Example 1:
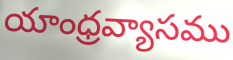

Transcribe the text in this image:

యాంధ్రవ్యాసము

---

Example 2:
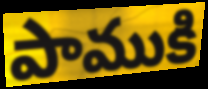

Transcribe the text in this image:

పాముకి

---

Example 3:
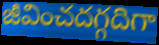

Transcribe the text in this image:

జీవించదగ్గదిగా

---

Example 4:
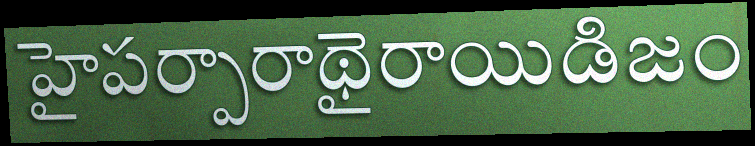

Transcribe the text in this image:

హైపర్పారాథైరాయిడిజం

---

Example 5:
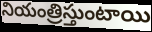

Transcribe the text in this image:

నియంత్రిస్తుంటాయి